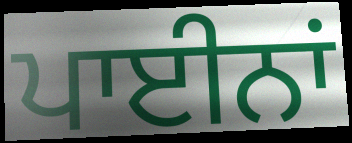
ਪਾਈਨਾਂ